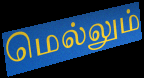
மெல்லும்